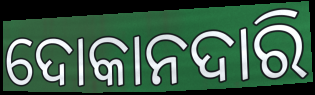
ଦୋକାନଦାରି